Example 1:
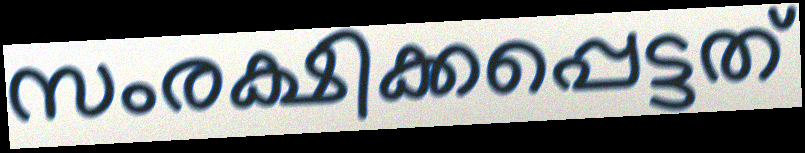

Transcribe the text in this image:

സംരക്ഷിക്കപ്പെട്ടത്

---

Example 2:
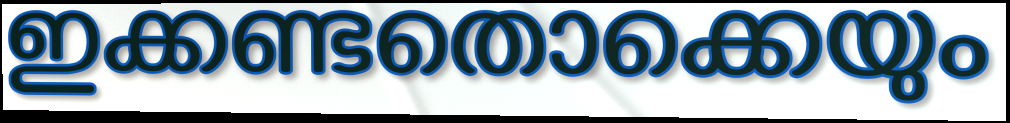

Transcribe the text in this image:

ഇക്കണ്ടതൊക്കെയും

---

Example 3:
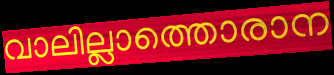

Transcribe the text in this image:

വാലില്ലാത്തൊരാന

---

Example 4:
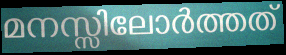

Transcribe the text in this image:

മനസ്സിലോർത്തത്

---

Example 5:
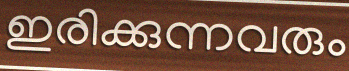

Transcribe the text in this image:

ഇരിക്കുന്നവരും